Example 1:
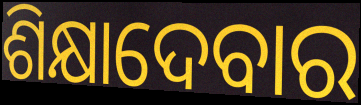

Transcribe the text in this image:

ଶିକ୍ଷାଦେବାର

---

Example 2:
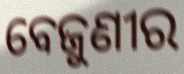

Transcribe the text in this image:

ବେଜୁଣୀର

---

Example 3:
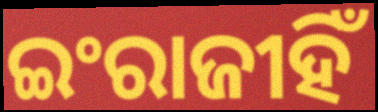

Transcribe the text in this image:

ଇଂରାଜୀହିଁ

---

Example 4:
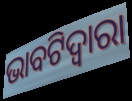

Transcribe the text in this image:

ଭାବଟିଦ୍ୱାରା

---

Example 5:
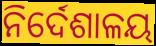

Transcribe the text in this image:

ନିର୍ଦେଶାଳୟ